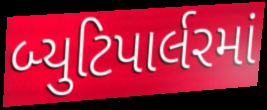
બ્યુટિપાર્લરમાં